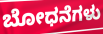
ಬೋಧನೆಗಳು